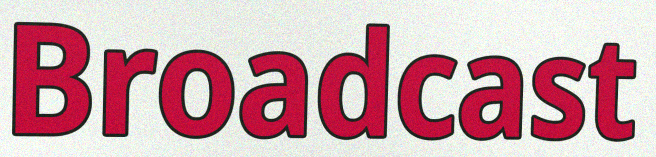
Broadcast